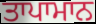
ਤਾਪਾਮਾਨ